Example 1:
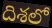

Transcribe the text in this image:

దిశలో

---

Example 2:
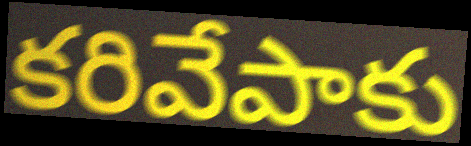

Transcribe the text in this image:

కరివేపాకు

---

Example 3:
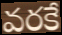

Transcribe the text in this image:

వరకే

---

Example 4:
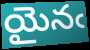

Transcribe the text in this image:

యైనఁ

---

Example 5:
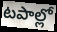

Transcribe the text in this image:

టపాల్లో